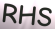
RHS